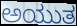
ಅಯುತ